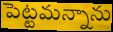
పెట్టమన్నాను